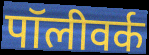
पॉलीवर्क